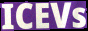
ICEVs